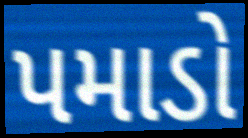
પમાડો